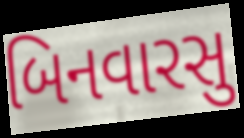
બિનવારસુ